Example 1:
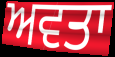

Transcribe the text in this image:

ਅਵਤਾ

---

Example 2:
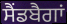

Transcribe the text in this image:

ਸੈਂਡਬੈਗਾਂ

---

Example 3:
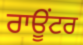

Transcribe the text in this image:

ਰਾਊਂਟਰ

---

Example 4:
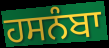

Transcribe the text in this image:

ਹਸਨੰਬਾ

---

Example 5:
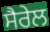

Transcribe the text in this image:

ਸੈਰੇਲ